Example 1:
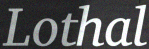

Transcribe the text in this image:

Lothal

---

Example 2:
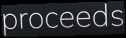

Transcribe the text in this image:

proceeds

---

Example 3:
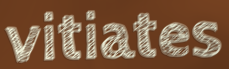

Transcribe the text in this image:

vitiates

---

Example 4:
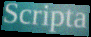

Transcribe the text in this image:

Scripta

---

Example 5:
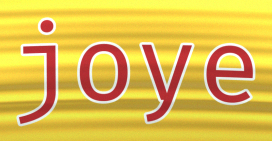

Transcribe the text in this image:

joye